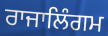
ਰਾਜਾਲਿੰਗਮ